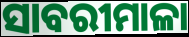
ସାବରୀମାଳା